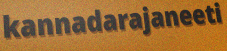
kannadarajaneeti